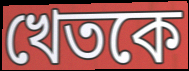
খেতকে